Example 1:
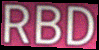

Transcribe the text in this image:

RBD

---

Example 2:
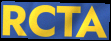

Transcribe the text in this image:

RCTA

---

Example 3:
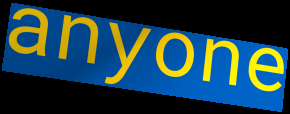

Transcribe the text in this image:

anyone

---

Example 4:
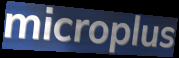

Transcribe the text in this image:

microplus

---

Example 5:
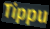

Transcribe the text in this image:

Tippu